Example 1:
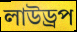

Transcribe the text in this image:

লাউড্রপ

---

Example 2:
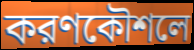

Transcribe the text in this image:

করণকৌশলে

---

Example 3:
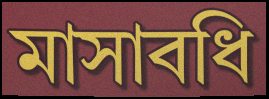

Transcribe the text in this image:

মাসাবধি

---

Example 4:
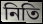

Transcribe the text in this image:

নিতি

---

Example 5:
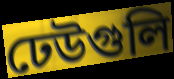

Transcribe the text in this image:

ঢেউগুলি